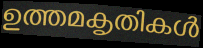
ഉത്തമകൃതികൾ